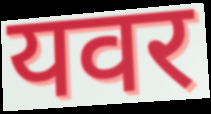
यवर